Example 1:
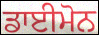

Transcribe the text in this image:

ਡਾਈਮੋਨ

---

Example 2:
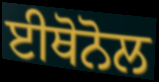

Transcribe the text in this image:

ਈਥੋਨੋਲ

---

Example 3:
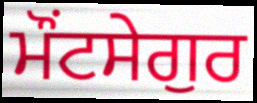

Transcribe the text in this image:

ਮੌਂਟਸੇਗੁਰ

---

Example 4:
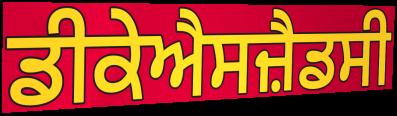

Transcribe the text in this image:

ਡੀਕੇਐਸਜ਼ੈਡਸੀ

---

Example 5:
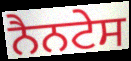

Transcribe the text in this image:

ਨੈਨਟੇਸ